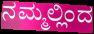
ನಮ್ಮಲ್ಲಿಂದ